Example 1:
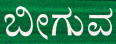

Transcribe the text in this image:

ಬೀಗುವ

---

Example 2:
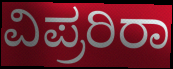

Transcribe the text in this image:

ವಿಪ್ರರಿರಾ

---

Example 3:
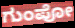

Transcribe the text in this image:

ಗುಂಪೋ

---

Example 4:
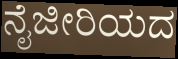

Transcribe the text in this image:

ನೈಜೀರಿಯದ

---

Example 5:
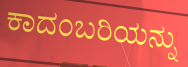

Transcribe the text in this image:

ಕಾದಂಬರಿಯನ್ನು